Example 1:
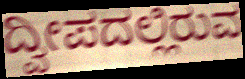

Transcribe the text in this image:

ದ್ವೀಪದಲ್ಲಿರುವ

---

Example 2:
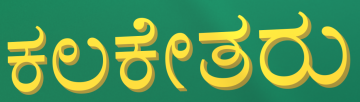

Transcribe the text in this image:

ಕಲಕೇತರು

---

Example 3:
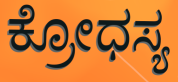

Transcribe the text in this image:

ಕ್ರೋಧಸ್ಯ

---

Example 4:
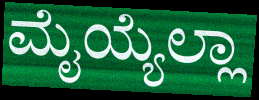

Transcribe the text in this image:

ಮೈಯ್ಯೆಲ್ಲಾ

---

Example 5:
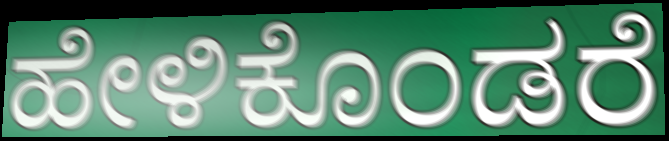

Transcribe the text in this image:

ಹೇಳಿಕೊಂಡರೆ